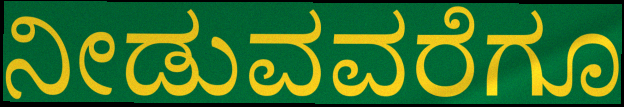
ನೀಡುವವರೆಗೂ